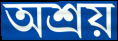
অশ্রয়